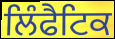
ਲਿੰਫੈਟਿਕ